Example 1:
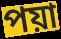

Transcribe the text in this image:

পয়া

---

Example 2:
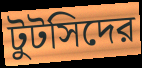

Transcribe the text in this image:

টুটসিদের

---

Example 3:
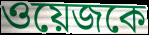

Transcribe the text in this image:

ওয়েজকে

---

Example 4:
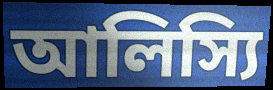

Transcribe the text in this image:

আলিস্যি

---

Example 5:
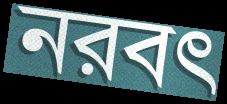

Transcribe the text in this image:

নরবৎ